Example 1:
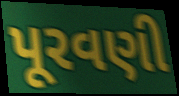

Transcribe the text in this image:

પૂરવણી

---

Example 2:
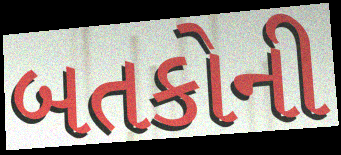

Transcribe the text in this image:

બતકોની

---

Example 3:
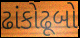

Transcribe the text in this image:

ઢાંકોઢૂબો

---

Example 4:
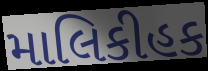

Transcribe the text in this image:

માલિકીહક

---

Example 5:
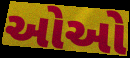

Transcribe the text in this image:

ઓઓ